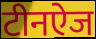
टीनऐज